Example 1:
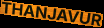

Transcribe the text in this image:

THANJAVUR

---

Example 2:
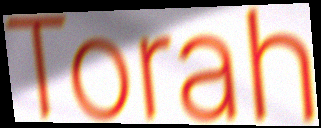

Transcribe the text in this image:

Torah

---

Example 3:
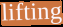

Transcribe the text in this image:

lifting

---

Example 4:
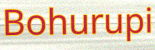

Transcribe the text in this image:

Bohurupi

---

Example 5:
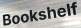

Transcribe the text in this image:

Bookshelf